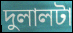
দুলালটা